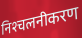
निश्चलनीकरण